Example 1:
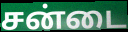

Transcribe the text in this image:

சன்டை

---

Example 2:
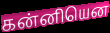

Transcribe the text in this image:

கன்னியென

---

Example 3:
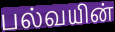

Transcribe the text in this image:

பல்வயின்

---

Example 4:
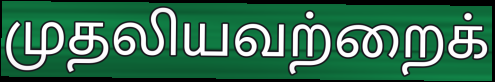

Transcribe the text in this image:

முதலியவற்றைக்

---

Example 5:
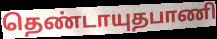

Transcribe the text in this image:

தெண்டாயுதபாணி